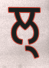
ਲ੍